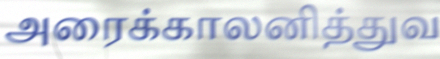
அரைக்காலனித்துவ